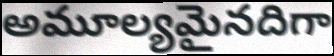
అమూల్యమైనదిగా